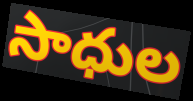
సాధుల